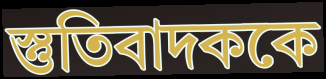
স্তুতিবাদককে